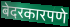
बेदरकारपणे